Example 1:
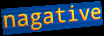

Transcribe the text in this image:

nagative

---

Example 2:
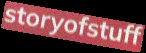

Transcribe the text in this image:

storyofstuff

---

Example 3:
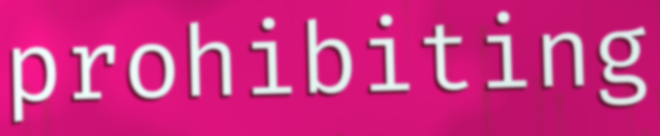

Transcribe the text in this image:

prohibiting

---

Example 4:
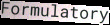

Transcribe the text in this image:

Formulatory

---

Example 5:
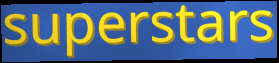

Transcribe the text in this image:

superstars